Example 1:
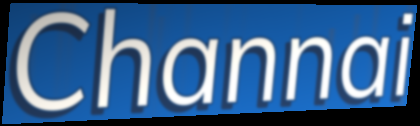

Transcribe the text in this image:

Channai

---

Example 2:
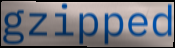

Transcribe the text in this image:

gzipped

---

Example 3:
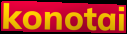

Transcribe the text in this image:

konotai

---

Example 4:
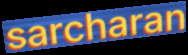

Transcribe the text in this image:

sarcharan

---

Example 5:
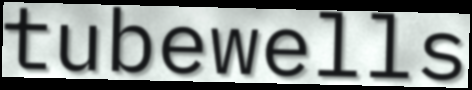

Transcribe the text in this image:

tubewells